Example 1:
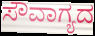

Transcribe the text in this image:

ಸೌವಾಗ್ಯದ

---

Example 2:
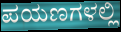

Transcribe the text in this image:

ಪಯಣಗಳಲ್ಲಿ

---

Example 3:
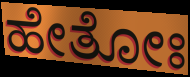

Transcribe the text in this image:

ಹೇತೋಃ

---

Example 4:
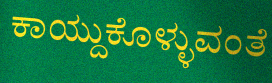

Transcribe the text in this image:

ಕಾಯ್ದುಕೊಳ್ಳುವಂತೆ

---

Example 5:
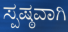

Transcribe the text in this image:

ಸ್ಪಷ್ಠವಾಗಿ